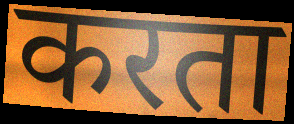
करता